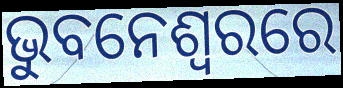
ଭୁବନେଶ୍ବରରେ